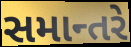
સમાન્તરે